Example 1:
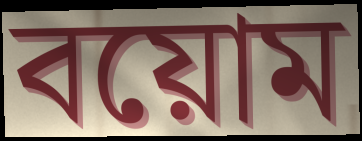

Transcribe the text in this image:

বয়োম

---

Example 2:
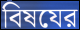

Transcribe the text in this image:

বিষযের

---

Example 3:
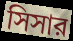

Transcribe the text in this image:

সিসার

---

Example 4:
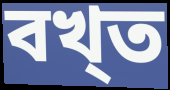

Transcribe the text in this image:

বখ্ত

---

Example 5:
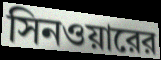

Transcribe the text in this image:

সিনওয়ারের